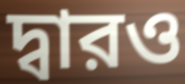
দ্বারও